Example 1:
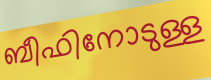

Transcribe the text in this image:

ബീഫിനോടുള്ള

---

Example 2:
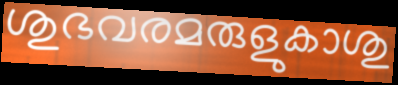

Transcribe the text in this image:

ശുഭവരമരുളുകാശു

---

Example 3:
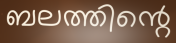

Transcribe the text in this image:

ബലത്തിന്റെ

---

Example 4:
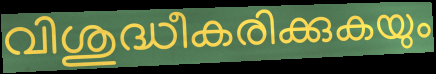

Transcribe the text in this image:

വിശുദ്ധീകരിക്കുകയും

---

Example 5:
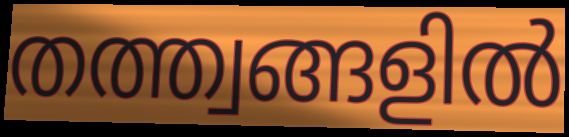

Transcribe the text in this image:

തത്ത്വങ്ങളിൽ